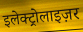
इलेक्ट्रोलाइज़र